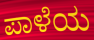
ಪಾಳೆಯ